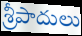
శ్రీపాదులు